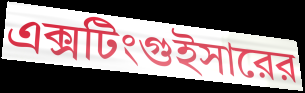
এক্সটিংগুইসারের